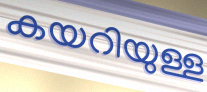
കയറിയുള്ള